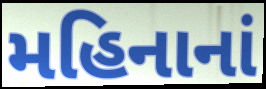
મહિનાનાં